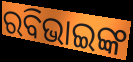
ରବିଭାଇଙ୍କ